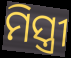
ମିସ୍ତ୍ରୀ